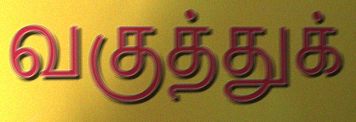
வகுத்துக்